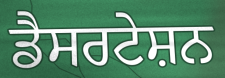
ਡੈਸਰਟੇਸ਼ਨ